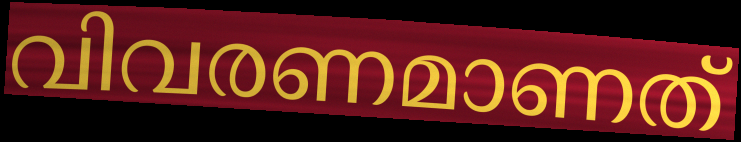
വിവരണമാണത്